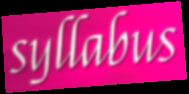
syllabus